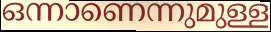
ഒന്നാണെന്നുമുള്ള